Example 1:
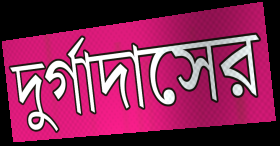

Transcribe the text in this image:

দুর্গাদাসের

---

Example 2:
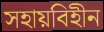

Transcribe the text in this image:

সহায়বিহীন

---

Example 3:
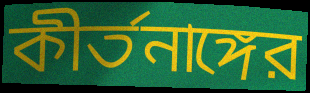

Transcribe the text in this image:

কীর্তনাঙ্গের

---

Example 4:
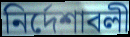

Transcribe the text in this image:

নির্দেশাবলী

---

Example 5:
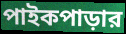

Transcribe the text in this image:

পাইকপাড়ার